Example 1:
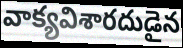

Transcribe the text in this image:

వాక్యవిశారదుడైన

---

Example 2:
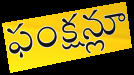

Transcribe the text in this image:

ఫంక్షన్లూ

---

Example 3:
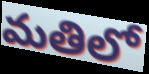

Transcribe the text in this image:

మతిలో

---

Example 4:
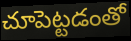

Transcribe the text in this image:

చూపెట్టడంతో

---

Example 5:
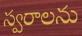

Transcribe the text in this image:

స్వరాలను